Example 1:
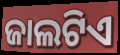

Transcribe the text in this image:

ଜାଲଟିଏ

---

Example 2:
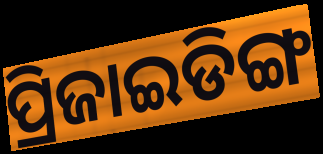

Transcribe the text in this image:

ପ୍ରିଜାଇଡିଙ୍ଗ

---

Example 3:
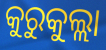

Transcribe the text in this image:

କୁରୁକୁଲ୍ଲା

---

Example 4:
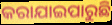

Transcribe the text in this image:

କରାଯାଇପାରୁଛି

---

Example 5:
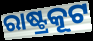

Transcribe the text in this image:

ରାଷ୍ଟ୍ରକୂଟ